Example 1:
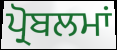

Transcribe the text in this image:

ਪ੍ਰੋਬਲਮਾਂ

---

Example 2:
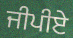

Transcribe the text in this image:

ਜੀਪੀਏ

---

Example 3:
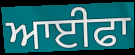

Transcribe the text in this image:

ਆਈਫਾ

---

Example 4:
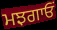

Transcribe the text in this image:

ਮਝਗਾਓਂ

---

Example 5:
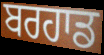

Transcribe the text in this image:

ਬਰਹਾਡ